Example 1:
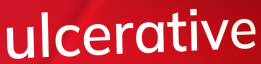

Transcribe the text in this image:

ulcerative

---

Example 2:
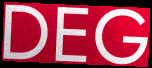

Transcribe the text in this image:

DEG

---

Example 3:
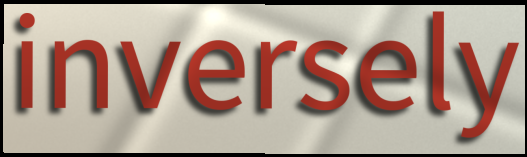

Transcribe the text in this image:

inversely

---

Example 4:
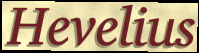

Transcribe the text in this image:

Hevelius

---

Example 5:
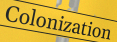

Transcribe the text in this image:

Colonization